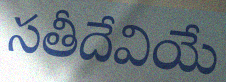
సతీదేవియే